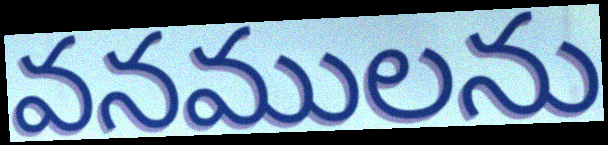
వనములను